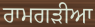
ਰਾਮਗੜੀਆ